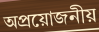
অপ্ৰয়োজনীয়